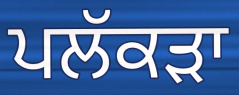
ਪਲੱਕੜਾ